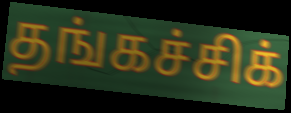
தங்கச்சிக்